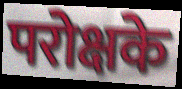
परोक्षके